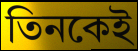
তিনকেই